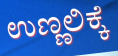
ಉಣ್ಣಲಿಕ್ಕೆ